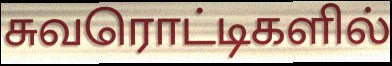
சுவரொட்டிகளில்